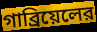
গাব্রিয়েলের